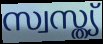
സ്വസ്ത്യ്